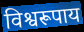
विश्वरूपाय